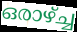
ഒരാഴ്ച്ച